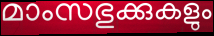
മാംസഭുക്കുകളും